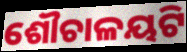
ଶୌଚାଳୟଟି